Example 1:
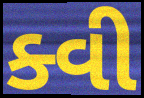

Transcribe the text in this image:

ક્વી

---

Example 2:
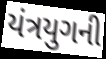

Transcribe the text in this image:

યંત્રયુગની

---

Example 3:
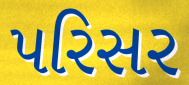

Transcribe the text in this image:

પરિસર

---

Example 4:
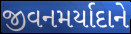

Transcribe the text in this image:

જીવનમર્યાદાને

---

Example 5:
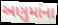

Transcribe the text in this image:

અણુમાંના